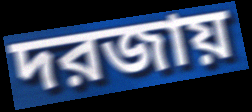
দরজায়